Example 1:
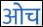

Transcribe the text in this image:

ओच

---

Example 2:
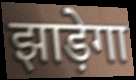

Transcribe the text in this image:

झाड़ेगा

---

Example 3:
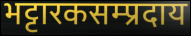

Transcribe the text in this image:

भट्टारकसम्प्रदाय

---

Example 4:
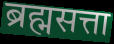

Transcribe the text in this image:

ब्रह्मसत्ता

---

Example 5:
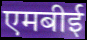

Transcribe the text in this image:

एमबीई